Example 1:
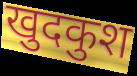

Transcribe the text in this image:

खुदकुश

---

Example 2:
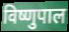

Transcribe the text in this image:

विष्णुपाल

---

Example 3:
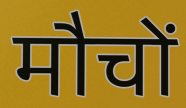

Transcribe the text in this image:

मौचों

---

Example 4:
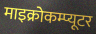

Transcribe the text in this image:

माइक्रोकम्प्यूटर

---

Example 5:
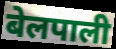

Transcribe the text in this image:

बेलपाली